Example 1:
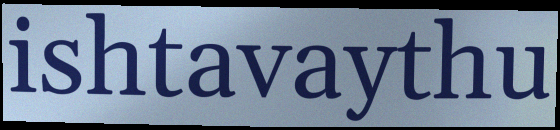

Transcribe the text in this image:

ishtavaythu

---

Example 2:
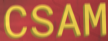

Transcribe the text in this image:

CSAM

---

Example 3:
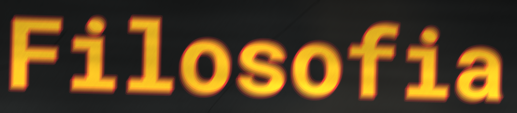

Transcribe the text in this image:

Filosofia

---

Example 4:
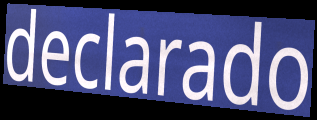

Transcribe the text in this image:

declarado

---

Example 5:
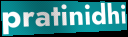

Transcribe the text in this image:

pratinidhi